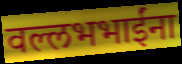
वल्लभभाईंना